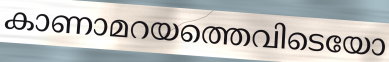
കാണാമറയത്തെവിടെയോ